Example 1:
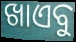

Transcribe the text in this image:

ଖାଏବୁ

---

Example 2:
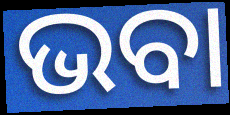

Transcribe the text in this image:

ଭବା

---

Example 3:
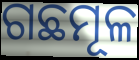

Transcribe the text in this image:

ଗଛମୂଳ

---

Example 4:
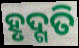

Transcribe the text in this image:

ହୃଦ୍ଗତି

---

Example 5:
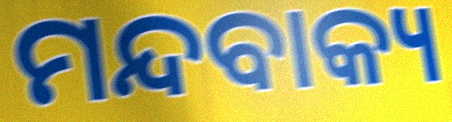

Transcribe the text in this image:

ମନ୍ଦବାକ୍ୟ